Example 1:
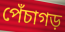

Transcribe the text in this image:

পেঁচাগড়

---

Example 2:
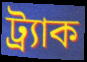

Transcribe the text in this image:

ট্র্যাক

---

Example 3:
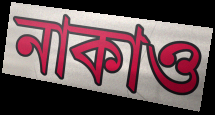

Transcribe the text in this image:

নাকাও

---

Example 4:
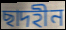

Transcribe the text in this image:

ছাদহীন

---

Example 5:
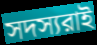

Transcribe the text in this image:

সদস্যরাই